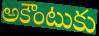
అకౌంటుకు